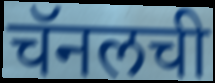
चॅनलची